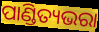
ପାଣ୍ଡିତ୍ୟଭରା